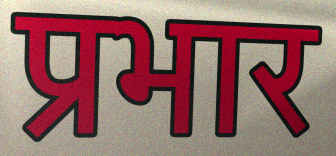
प्रभार